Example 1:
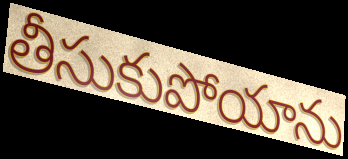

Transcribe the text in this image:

తీసుకుపోయాను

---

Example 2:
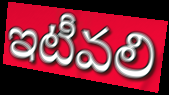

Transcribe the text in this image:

ఇటీవలి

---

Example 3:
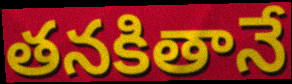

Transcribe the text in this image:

తనకితానే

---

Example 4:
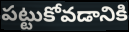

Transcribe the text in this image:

పట్టుకోవడానికి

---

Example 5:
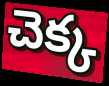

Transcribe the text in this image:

చెక్క